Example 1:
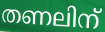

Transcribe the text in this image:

തണലിന്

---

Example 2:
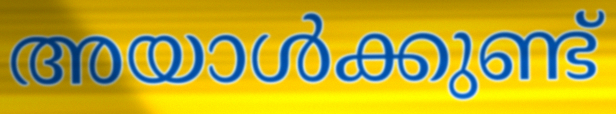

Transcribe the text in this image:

അയാൾക്കുണ്ട്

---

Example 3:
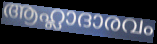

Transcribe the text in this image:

ആഹ്ലാദാരവം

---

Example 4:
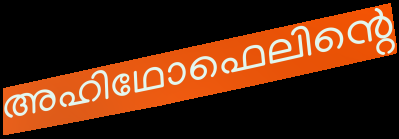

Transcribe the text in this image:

അഹിഥോഫെലിന്റെ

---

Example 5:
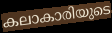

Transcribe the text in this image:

കലാകാരിയുടെ